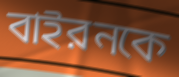
বাইরনকে